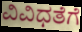
ವಿವಿಧತೆಗೆ